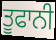
ਤੂਫਾਨੀ